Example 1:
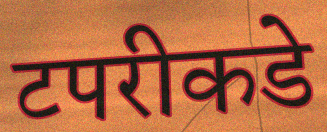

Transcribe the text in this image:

टपरीकडे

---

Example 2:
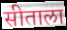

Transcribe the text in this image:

सीताला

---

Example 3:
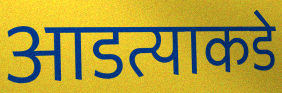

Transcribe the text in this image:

आडत्याकडे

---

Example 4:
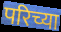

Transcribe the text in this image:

परिच्या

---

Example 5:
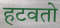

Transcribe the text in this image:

हटवतो